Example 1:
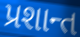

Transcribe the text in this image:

પ્રશાન્ત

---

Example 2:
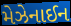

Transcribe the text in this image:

મેઝેનાઈન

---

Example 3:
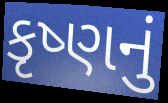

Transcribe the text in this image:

કૃષ્ણનું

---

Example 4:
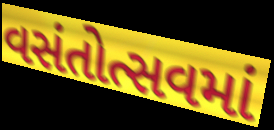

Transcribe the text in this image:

વસંતોત્સવમાં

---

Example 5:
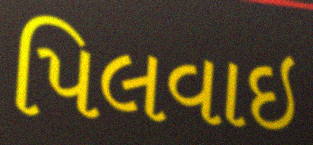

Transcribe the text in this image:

પિલવાઇ